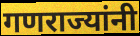
गणराज्यांनी